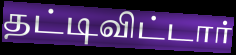
தட்டிவிட்டார்